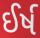
ઈર્ષ